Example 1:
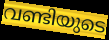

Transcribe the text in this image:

വണ്ടിയുടെ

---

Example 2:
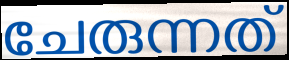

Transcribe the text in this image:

ചേരുന്നത്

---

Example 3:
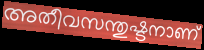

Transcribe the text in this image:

അതീവസന്തുഷ്ടനാണ്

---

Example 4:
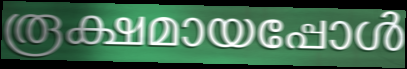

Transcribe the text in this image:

രൂക്ഷമായപ്പോൾ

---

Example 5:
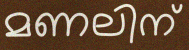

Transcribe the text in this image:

മണലിന്